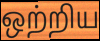
ஒற்றிய